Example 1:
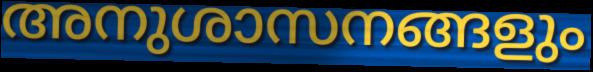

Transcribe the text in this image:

അനുശാസനങ്ങളും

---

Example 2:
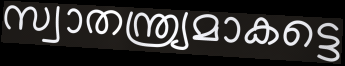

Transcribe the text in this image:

സ്വാതന്ത്ര്യമാകട്ടെ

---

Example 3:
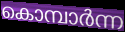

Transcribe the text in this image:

കൊമ്പാർന്ന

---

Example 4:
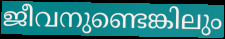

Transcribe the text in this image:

ജീവനുണ്ടെങ്കിലും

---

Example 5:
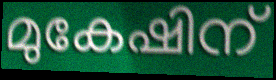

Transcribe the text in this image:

മുകേഷിന്